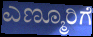
ಎಣ್ಮೂರಿಗೆ